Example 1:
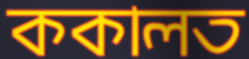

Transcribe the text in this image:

ককালত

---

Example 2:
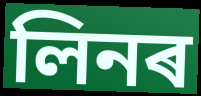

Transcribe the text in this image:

লিনৰ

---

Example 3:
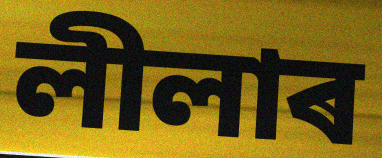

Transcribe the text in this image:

লীলাৰ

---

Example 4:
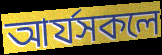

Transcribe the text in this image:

আৰ্যসকলে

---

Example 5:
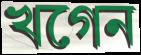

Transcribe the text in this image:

খগেন